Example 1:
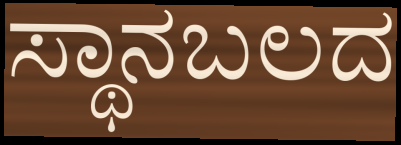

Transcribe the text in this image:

ಸ್ಥಾನಬಲದ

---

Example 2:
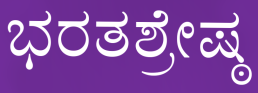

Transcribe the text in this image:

ಭರತಶ್ರೇಷ್ಠ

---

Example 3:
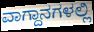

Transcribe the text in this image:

ವಾಗ್ದಾನಗಳಲ್ಲಿ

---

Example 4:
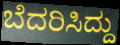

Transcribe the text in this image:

ಬೆದರಿಸಿದ್ದು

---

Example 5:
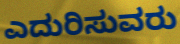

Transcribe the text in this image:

ಎದುರಿಸುವರು